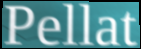
Pellat